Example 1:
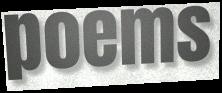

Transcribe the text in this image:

poems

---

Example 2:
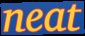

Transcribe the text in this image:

neat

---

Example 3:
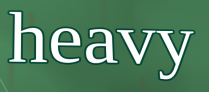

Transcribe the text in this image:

heavy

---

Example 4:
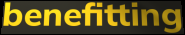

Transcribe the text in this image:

benefitting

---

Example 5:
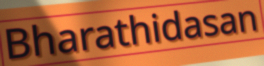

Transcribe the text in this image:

Bharathidasan